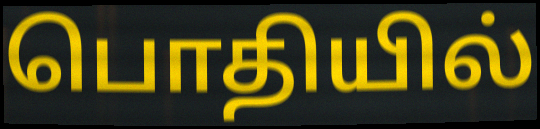
பொதியில்